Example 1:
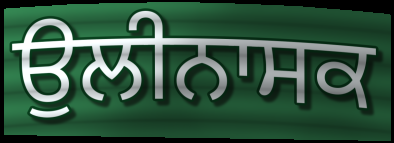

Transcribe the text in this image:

ਉਲੀਨਾਸਕ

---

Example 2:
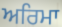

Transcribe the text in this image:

ਅਰਿਮਾ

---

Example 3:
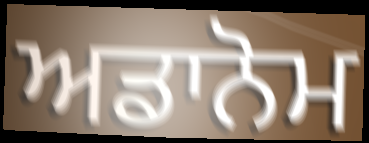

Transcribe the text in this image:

ਅਡਾਨੋਮ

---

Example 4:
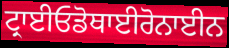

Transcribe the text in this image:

ਟ੍ਰਾਈਓਡੋਥਾਈਰੋਨਾਈਨ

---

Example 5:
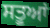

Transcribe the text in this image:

ਸਤੂਆਂ